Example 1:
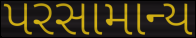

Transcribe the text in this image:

પરસામાન્ય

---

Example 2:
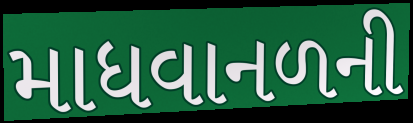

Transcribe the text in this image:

માધવાનળની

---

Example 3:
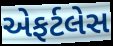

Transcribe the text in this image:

એફર્ટલેસ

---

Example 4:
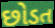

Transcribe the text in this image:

છોડત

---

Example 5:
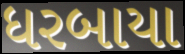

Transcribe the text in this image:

ધરબાયા